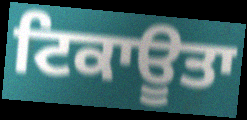
ਟਿਕਾਊਤਾ